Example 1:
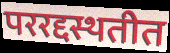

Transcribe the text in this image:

पररद्दस्थतीत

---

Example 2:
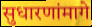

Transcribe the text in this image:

सुधारणांमागे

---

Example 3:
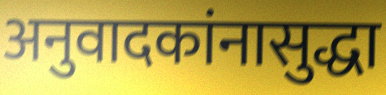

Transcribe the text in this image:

अनुवादकांनासुद्धा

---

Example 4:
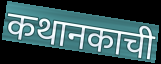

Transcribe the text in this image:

कथानकाची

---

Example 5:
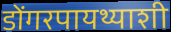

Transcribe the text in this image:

डोंगरपायथ्याशी